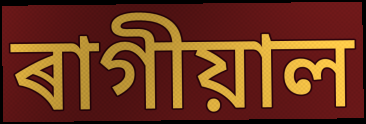
ৰাগীয়াল